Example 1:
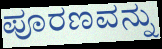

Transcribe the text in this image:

ಪೂರಣವನ್ನು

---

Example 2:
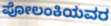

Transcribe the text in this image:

ಪೋಲಂಕಿಯವರ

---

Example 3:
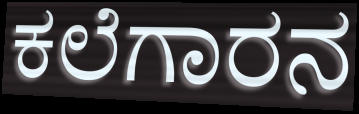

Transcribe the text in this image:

ಕಲೆಗಾರನ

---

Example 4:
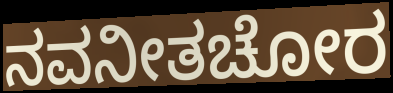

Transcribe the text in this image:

ನವನೀತಚೋರ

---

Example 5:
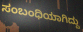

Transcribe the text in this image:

ಸಂಬಂಧಿಯಾಗಿದ್ದು